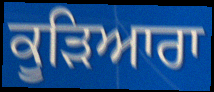
ਕੂੜਿਆਰਾ